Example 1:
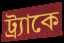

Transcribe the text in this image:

ট্র্যাকে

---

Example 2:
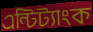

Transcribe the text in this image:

এন্টিট্যাংক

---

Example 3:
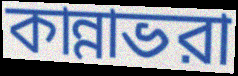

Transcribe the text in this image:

কান্নাভরা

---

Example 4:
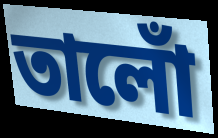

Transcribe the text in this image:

তালোঁ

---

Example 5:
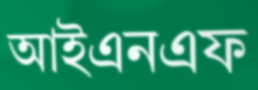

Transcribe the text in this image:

আইএনএফ